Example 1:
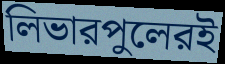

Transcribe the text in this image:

লিভারপুলেরই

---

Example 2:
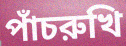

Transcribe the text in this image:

পাঁচরুখি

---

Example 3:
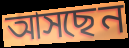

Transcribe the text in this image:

আসছেন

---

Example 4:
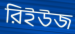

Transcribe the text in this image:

রিইউজ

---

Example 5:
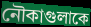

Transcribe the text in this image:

নৌকাগুলাকে